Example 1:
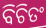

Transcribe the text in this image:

ବିଚିତଂ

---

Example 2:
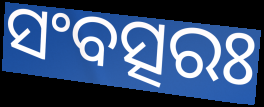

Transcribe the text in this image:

ସଂବତ୍ସରଃ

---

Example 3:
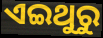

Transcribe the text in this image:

ଏଇଥୁରୁ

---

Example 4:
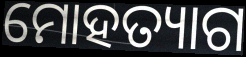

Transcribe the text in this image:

ମୋହତ୍ୟାଗ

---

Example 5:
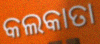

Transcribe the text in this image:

କଲକାତା